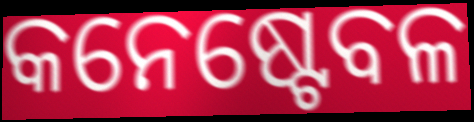
କନେଷ୍ଟେବଳ